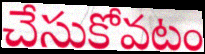
చేసుకోవటం